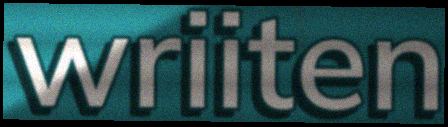
wriiten